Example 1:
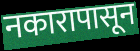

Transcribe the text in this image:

नकारापासून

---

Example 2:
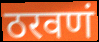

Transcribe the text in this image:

ठरवणं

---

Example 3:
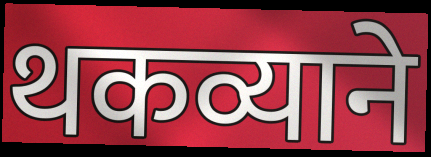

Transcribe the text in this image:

थकव्याने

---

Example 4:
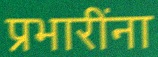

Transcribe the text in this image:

प्रभारींना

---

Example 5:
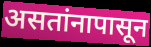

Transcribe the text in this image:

असतांनापासून